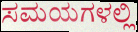
ಸಮಯಗಳಲ್ಲಿ